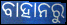
ବାହାନରୁ